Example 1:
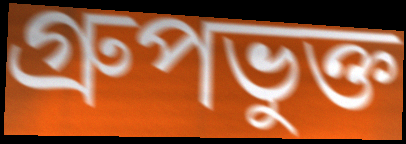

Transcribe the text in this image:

গ্রুপভুক্ত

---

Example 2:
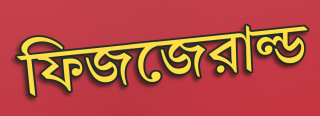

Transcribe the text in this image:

ফিজজেরাল্ড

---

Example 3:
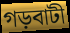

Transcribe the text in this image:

গড়বাটী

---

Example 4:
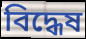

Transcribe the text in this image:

বিদ্ধেষ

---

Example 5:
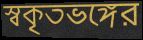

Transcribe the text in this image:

স্বকৃতভঙ্গের